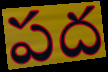
పద